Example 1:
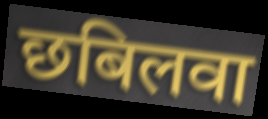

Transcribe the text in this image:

छबिलवा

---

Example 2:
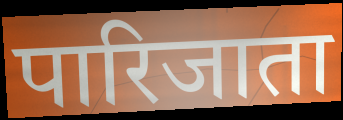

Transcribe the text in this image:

पारिजाता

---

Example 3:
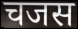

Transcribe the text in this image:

चजस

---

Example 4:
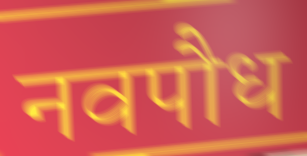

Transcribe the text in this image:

नवपौध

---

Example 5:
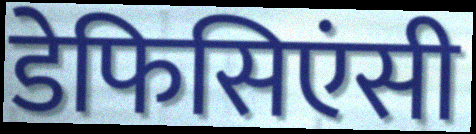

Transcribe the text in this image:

डेफिसिएंसी